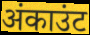
अंकाउंट